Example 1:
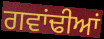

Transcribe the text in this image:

ਗਵਾਂਢੀਆਂ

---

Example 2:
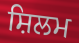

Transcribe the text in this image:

ਸ਼ਿਲਮ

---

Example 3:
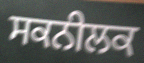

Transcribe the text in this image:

ਸਕਨੀਲਕ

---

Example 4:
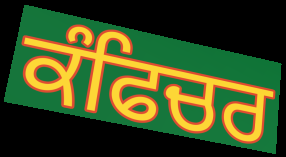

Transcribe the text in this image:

ਕੰਫਿਚਰ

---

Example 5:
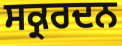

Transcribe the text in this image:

ਸਕ੍ਰਰਦਨ